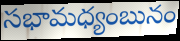
సభామధ్యంబునం